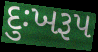
દુઃખરૂપ